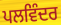
ਪਲਵਿੰਦਰ